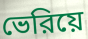
ভেরিয়ে